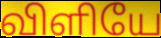
விளியே